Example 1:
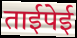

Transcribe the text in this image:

ताईपेई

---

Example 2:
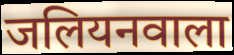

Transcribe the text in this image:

जलियनवाला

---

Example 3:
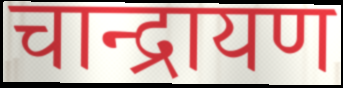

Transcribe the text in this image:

चान्द्रायण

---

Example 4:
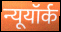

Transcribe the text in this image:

न्यूयॉर्क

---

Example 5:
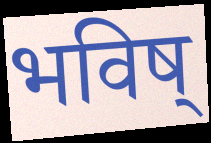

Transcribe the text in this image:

भविष्